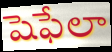
షెఫేలా